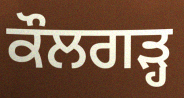
ਕੌਲਗੜ੍ਹ